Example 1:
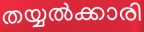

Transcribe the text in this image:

തയ്യൽക്കാരി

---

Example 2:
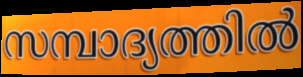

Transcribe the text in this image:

സമ്പാദ്യത്തിൽ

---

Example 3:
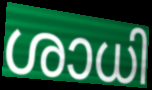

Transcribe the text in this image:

ശാധി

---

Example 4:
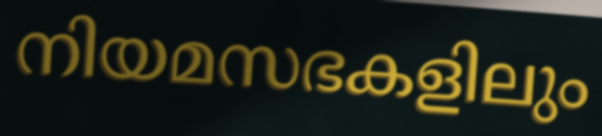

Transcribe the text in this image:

നിയമസഭകളിലും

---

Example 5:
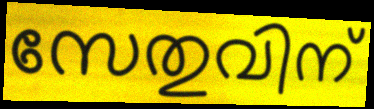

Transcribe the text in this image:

സേതുവിന്